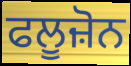
ਫਲੂਜ਼ੋਨ